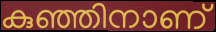
കുഞ്ഞിനാണ്